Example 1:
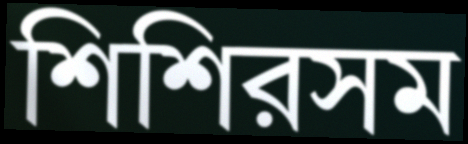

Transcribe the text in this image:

শিশিরসম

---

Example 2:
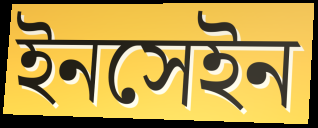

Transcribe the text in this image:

ইনসেইন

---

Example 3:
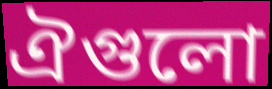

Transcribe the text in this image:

ঐগুলো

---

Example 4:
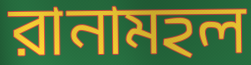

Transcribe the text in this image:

রানামহল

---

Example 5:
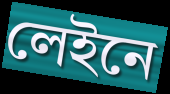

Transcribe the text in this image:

লেইনে